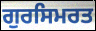
ਗੁਰਸਿਮਰਤ